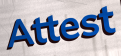
Attest